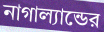
নাগাল্যান্ডের